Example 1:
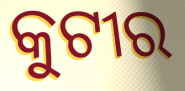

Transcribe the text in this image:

କୁଟୀର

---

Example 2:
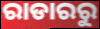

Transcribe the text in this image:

ରାଡାରରୁ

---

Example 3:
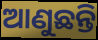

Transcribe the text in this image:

ଆଣୁଛନ୍ତି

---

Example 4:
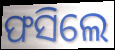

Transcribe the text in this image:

ଫସିଲେ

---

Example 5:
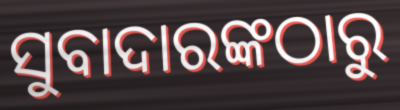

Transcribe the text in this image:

ସୁବାଦାରଙ୍କଠାରୁ